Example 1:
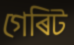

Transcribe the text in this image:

গেৰিট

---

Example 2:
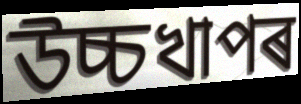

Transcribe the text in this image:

উচ্চখাপৰ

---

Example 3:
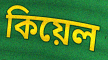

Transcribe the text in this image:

কিয়েল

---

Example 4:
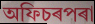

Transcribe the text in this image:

অফিচৰপৰা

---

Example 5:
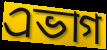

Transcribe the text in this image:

এভাগ